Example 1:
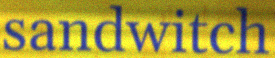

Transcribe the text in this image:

sandwitch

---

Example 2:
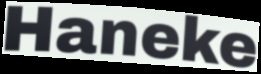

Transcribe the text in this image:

Haneke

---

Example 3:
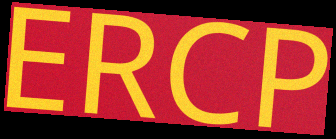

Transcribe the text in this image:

ERCP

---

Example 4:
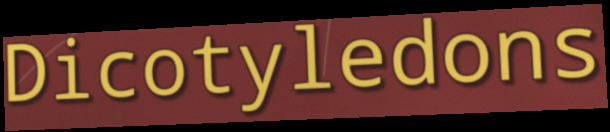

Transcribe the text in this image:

Dicotyledons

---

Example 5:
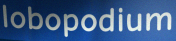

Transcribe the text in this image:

lobopodium